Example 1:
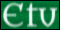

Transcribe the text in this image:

Etu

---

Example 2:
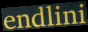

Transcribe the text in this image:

endlini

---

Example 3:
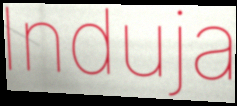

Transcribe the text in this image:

Induja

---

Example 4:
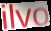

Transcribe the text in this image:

ilvo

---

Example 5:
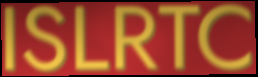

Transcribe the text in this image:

ISLRTC